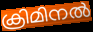
ക്രിമിനൽ